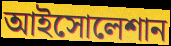
আইসোলেশান